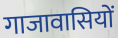
गाजावासियों